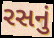
રસનું